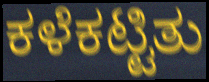
ಕಳೆಕಟ್ಟಿತು